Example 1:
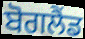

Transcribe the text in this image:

ਬੋਗਲੈਂਡ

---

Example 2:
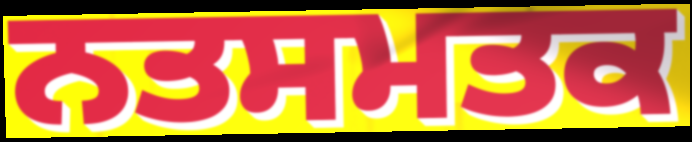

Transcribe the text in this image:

ਨਤਸਮਤਕ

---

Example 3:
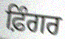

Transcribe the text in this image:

ਫ਼ਿੰਗਰ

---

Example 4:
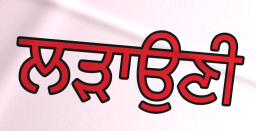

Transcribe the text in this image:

ਲੜਾਉਣੀ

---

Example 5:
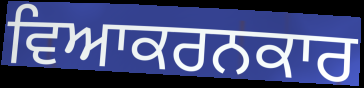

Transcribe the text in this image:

ਵਿਆਕਰਨਕਾਰ